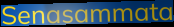
Senasammata